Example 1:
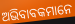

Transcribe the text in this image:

ଅଭିବାବକମାନେ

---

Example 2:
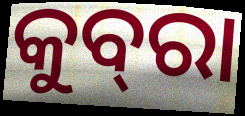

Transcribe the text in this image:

କୁବ୍‍ରା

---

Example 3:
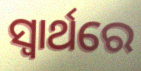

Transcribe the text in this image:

ସ୍ବାର୍ଥରେ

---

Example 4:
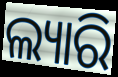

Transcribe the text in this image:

ଲ୍ୟାରି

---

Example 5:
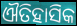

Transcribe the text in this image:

ଐତିହାସିକ